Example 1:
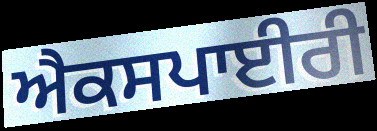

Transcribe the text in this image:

ਐਕਸਪਾਈਰੀ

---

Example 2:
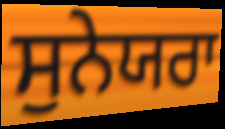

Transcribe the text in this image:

ਸੁਨੇਯਰਾ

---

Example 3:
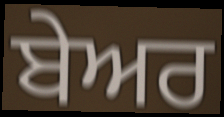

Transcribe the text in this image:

ਬੇਅਰ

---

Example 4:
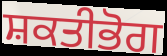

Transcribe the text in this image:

ਸ਼ਕਤੀਭੋਗ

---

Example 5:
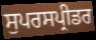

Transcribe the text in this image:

ਸੁਪਰਸਪ੍ਰੀਡਰ